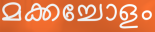
മക്കച്ചോളം